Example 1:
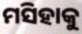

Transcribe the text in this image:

ମସିହାକୁ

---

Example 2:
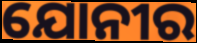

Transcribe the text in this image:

ଯୋନୀର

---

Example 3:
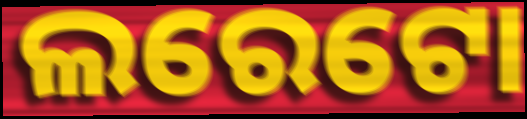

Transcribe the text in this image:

ଲରେଟୋ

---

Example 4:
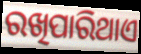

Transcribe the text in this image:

ରଖିପାରିଥାଏ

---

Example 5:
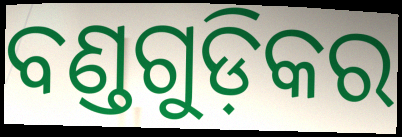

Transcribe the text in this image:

ବଣ୍ଡଗୁଡ଼ିକର